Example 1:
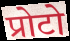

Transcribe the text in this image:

प्रोटो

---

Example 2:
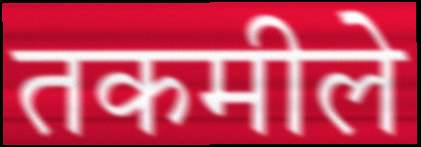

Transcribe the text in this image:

तकमीले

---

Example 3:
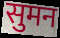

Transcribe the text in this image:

सुमन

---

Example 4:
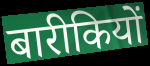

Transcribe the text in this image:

बारीकियों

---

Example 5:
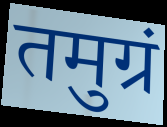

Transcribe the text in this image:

तमुग्रं